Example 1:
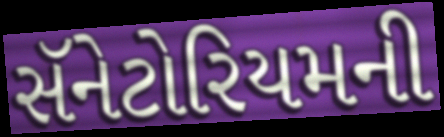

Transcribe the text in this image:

સૅનેટોરિયમની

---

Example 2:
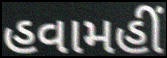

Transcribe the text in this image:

હવામહીં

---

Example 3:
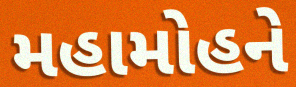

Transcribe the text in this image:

મહામોહને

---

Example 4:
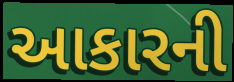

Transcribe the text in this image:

આકારની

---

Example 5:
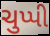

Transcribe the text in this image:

ચુપ્પી